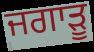
ਜਗਾੜੂ